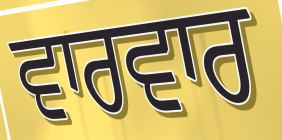
ਵਾਰਵਾਰ